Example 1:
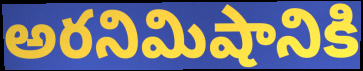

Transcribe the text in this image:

అరనిమిషానికి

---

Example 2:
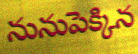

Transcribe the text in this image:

నునుపెక్కిన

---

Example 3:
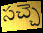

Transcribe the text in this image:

సచ్చె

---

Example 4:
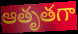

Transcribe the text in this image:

ఆతృతగా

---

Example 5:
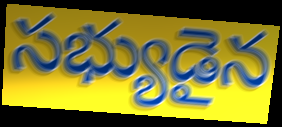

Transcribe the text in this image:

సభ్యుడైన